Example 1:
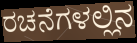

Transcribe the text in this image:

ರಚನೆಗಳಲ್ಲಿನ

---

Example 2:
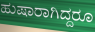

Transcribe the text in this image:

ಹುಷಾರಾಗಿದ್ದರೂ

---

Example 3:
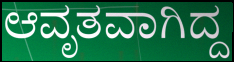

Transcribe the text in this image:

ಆವೃತವಾಗಿದ್ದ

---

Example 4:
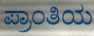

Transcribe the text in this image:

ಪ್ರಾಂತಿಯ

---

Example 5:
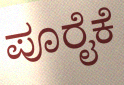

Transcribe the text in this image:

ಪೂರೈಕೆ